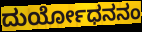
ದುರ್ಯೋಧನನಂ